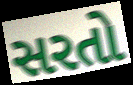
સરતો